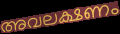
അവലക്ഷണം